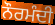
ਨੌਰਮੰਦੀ